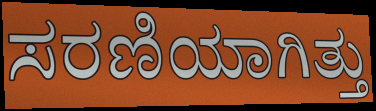
ಸರಣಿಯಾಗಿತ್ತು